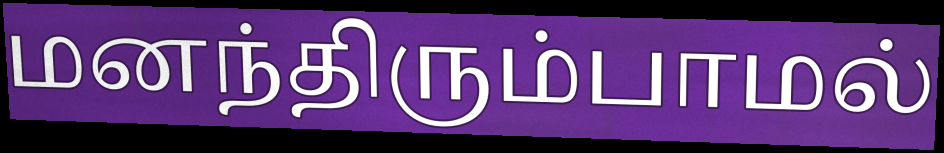
மனந்திரும்பாமல்